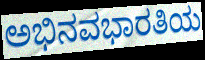
ಅಭಿನವಭಾರತಿಯ